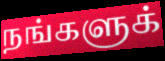
நங்களுக்